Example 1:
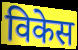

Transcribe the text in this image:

विकेस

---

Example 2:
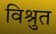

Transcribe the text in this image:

विश्रुत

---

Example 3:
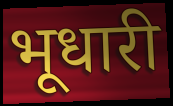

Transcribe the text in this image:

भूधारी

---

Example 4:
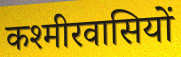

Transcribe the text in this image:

कश्मीरवासियों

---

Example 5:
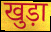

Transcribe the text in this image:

खुड़ा